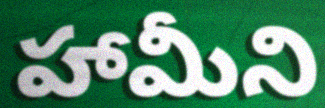
హామీని